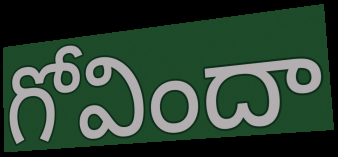
గోవిందా